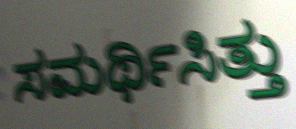
ಸಮರ್ಥಿಸಿತ್ತು